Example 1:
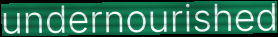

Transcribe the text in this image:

undernourished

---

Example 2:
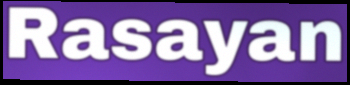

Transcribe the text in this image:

Rasayan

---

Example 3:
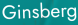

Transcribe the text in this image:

Ginsberg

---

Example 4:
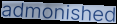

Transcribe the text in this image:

admonished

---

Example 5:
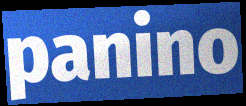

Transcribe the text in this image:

panino